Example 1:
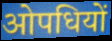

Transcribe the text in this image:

ओपधियों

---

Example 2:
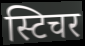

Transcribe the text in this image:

स्टिचर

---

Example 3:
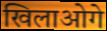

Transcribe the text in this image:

खिलाओगे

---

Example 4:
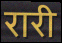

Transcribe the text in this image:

रारी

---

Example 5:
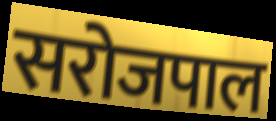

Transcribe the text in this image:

सरोजपाल